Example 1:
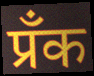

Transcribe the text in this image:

प्रँक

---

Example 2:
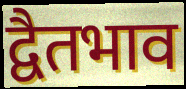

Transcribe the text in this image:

द्वैतभाव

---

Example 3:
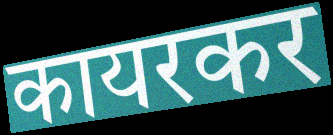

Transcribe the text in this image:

कायरकर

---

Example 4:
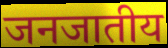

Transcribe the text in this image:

जनजातीय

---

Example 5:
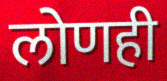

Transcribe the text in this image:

लोणही